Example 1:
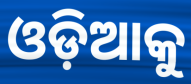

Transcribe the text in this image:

ଓଡ଼ିଆକୁ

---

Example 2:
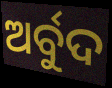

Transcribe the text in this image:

ଅର୍ବୁଦ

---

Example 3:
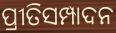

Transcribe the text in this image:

ପ୍ରୀତିସମ୍ପାଦନ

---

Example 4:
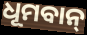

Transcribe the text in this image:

ଧୂମବାନ୍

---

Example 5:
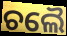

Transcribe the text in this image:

ଚଲୈ